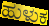
ಹುಳುಕ